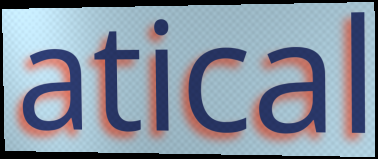
atical